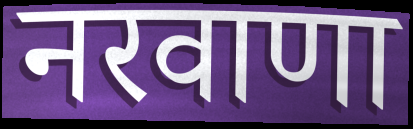
नरवाणा